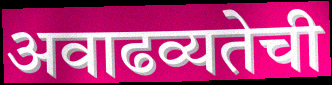
अवाढव्यतेची